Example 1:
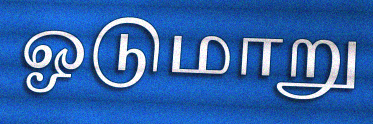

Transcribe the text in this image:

ஓடுமாறு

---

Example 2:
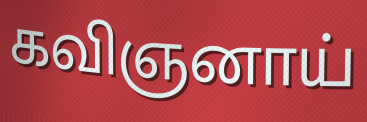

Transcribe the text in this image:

கவிஞனாய்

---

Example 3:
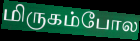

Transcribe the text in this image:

மிருகம்போல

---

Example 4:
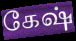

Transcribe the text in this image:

கேஷ்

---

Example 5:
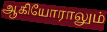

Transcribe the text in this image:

ஆகியோராலும்